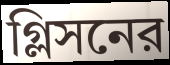
গ্লিসনের